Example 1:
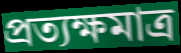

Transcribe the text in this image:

প্রত্যক্ষমাত্র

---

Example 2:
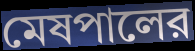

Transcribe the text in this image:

মেষপালের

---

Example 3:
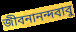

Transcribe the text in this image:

জীবনানন্দবাবু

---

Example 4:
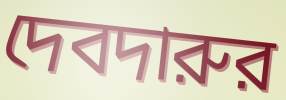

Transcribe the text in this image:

দেবদারুর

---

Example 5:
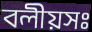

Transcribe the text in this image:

বলীয়সঃ